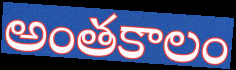
అంతకాలం